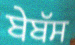
ਬੇਬੱਸ